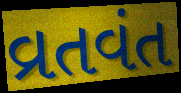
વ્રતવંત